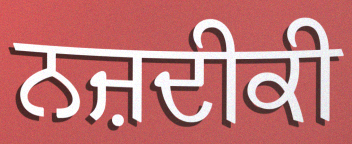
ਨਜ਼ਦੀਕੀ